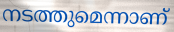
നടത്തുമെന്നാണ്